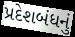
પ્રદેશબંધનું